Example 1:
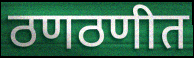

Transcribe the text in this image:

ठणठणीत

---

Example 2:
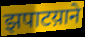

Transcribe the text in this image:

झपाटय़ाने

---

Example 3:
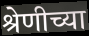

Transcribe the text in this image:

श्रेणीच्या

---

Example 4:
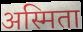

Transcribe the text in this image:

अस्मिता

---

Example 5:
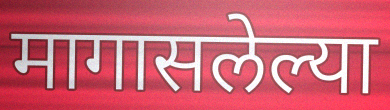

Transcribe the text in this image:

मागासलेल्या